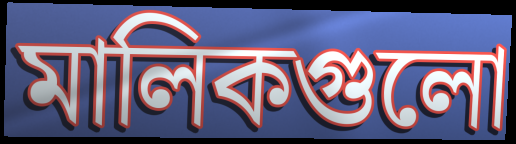
মালিকগুলো